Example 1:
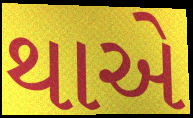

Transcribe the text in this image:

થાએ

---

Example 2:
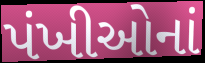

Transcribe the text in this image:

પંખીઓનાં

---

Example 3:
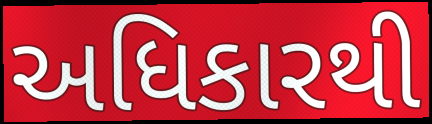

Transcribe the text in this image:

અધિકારથી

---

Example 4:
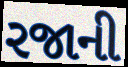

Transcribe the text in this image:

રજાની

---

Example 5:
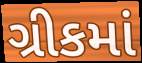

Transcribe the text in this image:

ગ્રીકમાં